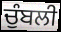
ਚੁੰਬਲੀ